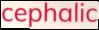
cephalic